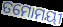
ତମୋମୟୀ